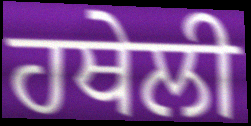
ਹਥੇਲੀ